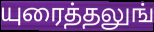
யுரைத்தலுங்